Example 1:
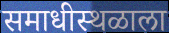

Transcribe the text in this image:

समाधीस्थळाला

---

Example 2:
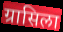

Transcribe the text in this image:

ग्रासिला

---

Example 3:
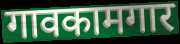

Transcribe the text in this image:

गावकामगार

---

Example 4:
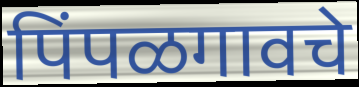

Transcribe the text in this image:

पिंपळगावचे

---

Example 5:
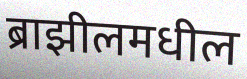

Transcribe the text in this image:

ब्राझीलमधील